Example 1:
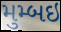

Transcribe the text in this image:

મુમ્બઇ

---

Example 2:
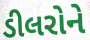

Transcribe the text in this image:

ડીલરોને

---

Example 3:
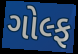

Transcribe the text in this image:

ગોલ્ફ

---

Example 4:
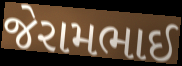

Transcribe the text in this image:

જેરામભાઈ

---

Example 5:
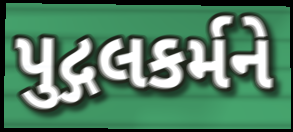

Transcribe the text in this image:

પુદ્ગલકર્મને